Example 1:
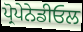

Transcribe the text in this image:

ਪ੍ਰੋਪੇਨੇਡੀਓਲ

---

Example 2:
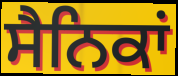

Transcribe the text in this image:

ਸੈਨਿਕਾਂ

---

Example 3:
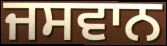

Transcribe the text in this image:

ਜਸਵਾਨ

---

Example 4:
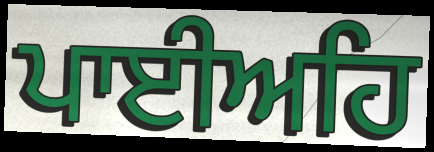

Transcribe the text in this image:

ਪਾਈਅਹਿ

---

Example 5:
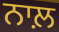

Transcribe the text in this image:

ਨਾਲ਼